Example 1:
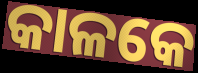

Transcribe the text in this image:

କାଳକେ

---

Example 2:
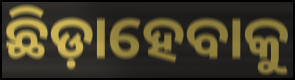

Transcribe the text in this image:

ଛିଡ଼ାହେବାକୁ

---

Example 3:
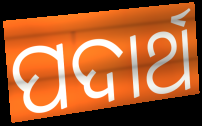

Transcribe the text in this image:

ପଦାର୍ଥ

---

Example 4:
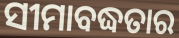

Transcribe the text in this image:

ସୀମାବଦ୍ଧତାର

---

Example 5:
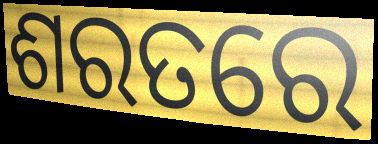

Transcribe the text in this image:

ଶରତରେ